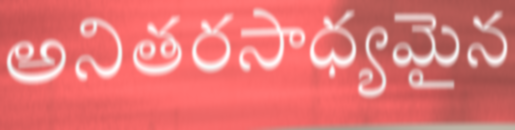
అనితరసాధ్యమైన